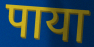
पाया